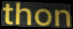
thon